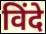
विंदे